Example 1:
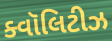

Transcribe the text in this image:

ક્વૉલિટીઝ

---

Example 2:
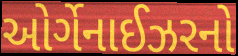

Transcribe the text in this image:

ઓર્ગેનાઈઝરનો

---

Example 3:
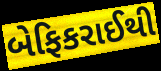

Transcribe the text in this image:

બેફિકરાઈથી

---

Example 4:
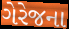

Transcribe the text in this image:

ગેરેજના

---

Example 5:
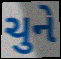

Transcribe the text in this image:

ચુને